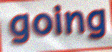
going